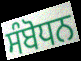
ਸੰਬੋਧਨ